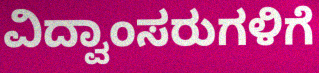
ವಿದ್ವಾಂಸರುಗಳಿಗೆ